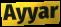
Ayyar